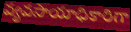
వ్యవసాయాధికారిగా